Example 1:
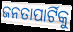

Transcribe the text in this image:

ଜନତାପାର୍ଟିକୁ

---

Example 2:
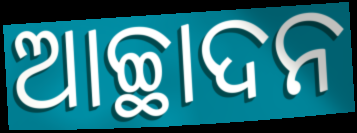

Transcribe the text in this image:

ଆଚ୍ଛାଦନ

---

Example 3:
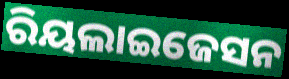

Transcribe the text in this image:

ରିୟଲାଇଜେସନ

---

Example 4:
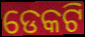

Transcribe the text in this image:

ଡେକଟି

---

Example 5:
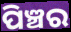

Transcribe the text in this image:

ପିଞ୍ଚର